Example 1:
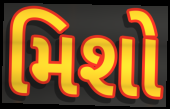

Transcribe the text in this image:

મિશો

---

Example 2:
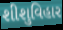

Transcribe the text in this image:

શીશુવિહાર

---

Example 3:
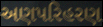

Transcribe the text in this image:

અણપરિહરણ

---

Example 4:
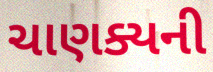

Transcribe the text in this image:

ચાણક્યની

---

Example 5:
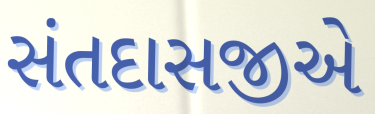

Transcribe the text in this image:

સંતદાસજીએ